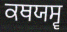
ਕਥਯਸ੍ਵ